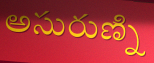
అసురుణ్ని